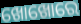
ଖୋଖୋରେ